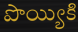
పొయ్యికి